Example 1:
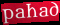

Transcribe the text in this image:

pahad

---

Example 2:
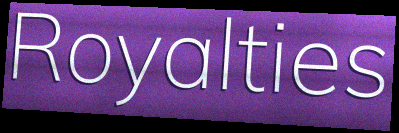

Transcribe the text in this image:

Royalties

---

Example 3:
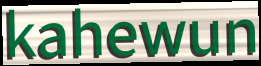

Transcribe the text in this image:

kahewun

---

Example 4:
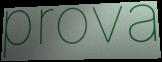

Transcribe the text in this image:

prova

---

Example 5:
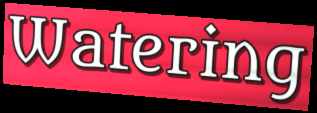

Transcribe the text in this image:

Watering